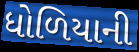
ધોળિયાની